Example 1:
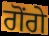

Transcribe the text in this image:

ਗੋਂਗੇ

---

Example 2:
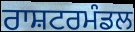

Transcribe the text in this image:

ਰਾਸ਼ਟਰਮੰਡਲ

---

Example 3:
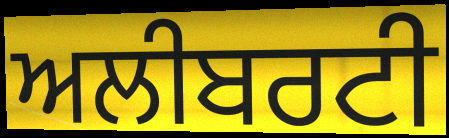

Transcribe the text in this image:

ਅਲੀਬਰਟੀ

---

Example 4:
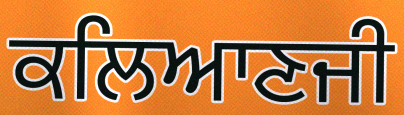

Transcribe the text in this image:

ਕਲਿਆਣਜੀ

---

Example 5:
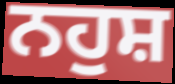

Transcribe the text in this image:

ਨਹੁਸ਼